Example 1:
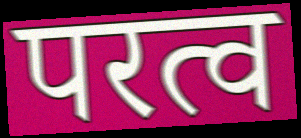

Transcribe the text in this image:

परत्व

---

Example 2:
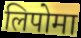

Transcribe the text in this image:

लिपोमा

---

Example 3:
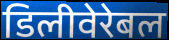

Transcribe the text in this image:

डिलीवेरेबल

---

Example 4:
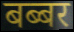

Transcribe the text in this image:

बब्बर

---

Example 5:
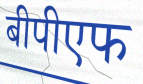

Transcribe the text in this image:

बीपीएफ